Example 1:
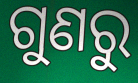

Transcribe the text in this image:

ଗୁଣରୁ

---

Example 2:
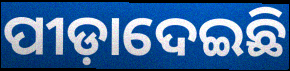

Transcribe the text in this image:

ପୀଡ଼ାଦେଇଛି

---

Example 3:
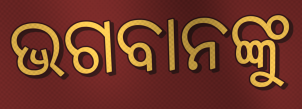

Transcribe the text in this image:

ଭଗବାନଙ୍କୁ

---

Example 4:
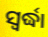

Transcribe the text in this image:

ସ୍ଵର୍ଦ୍ଧା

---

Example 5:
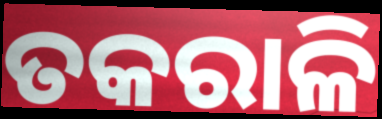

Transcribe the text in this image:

ତକରାଳି